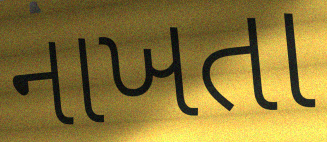
નાખતા